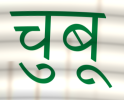
चुबू